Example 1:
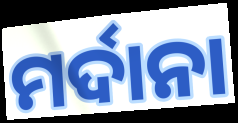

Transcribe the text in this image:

ମର୍ଦାନା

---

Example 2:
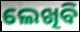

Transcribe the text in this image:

ଲେଖିବି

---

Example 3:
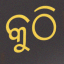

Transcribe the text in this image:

କୁଠି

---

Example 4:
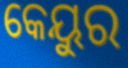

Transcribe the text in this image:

କେୟୁର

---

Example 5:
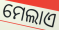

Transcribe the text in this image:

ମେଲାଏ